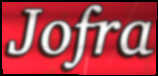
Jofra